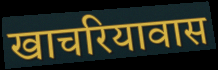
खाचरियावास